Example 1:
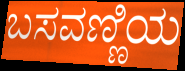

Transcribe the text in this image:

ಬಸವಣ್ಣಿಯ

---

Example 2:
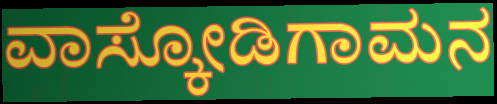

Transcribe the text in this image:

ವಾಸ್ಕೋಡಿಗಾಮನ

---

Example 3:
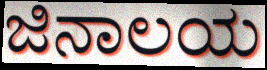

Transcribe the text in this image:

ಜಿನಾಲಯ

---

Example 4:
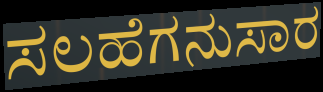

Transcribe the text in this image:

ಸಲಹೆಗನುಸಾರ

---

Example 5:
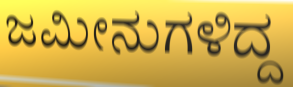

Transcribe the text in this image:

ಜಮೀನುಗಳಿದ್ದ